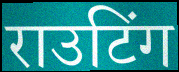
राउटिंग